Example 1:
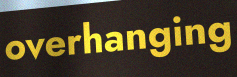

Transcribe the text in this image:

overhanging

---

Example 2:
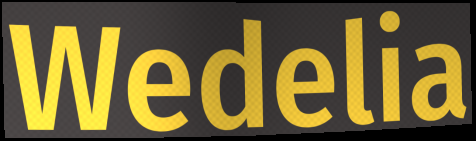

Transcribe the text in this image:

Wedelia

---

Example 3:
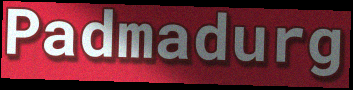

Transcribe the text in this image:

Padmadurg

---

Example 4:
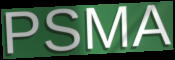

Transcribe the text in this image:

PSMA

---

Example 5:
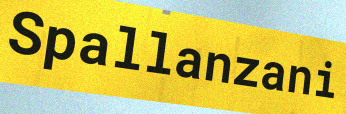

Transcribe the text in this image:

Spallanzani